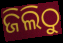
ଜିଲିଠୁ